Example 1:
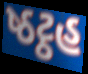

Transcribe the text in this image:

ષ્ઠટ્ઠહ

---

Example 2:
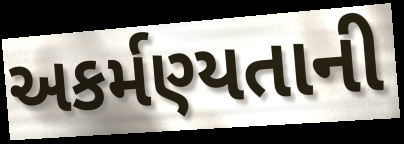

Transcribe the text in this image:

અકર્મણ્યતાની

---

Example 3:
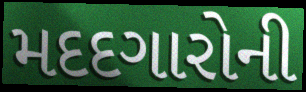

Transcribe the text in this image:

મદદગારોની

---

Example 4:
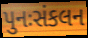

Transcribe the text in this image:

પુનઃસંકલન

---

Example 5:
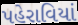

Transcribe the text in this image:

પહેરાવિયાં